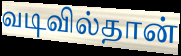
வடிவில்தான்